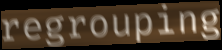
regrouping